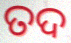
ତଦ